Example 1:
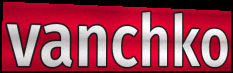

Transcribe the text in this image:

vanchko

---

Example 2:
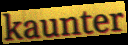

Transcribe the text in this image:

kaunter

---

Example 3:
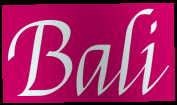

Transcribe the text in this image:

Bali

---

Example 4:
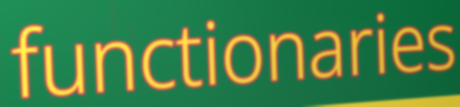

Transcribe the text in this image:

functionaries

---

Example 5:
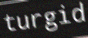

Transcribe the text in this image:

turgid